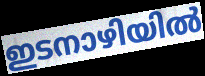
ഇടനാഴിയിൽ